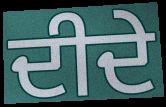
ਦੀਦੇ